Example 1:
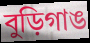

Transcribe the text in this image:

বুড়িগাঙ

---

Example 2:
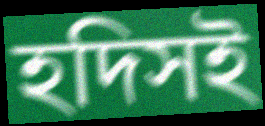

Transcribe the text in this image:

হদিসই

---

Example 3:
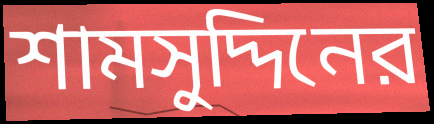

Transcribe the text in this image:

শামসুদ্দিনের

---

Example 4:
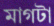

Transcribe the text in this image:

মাগটা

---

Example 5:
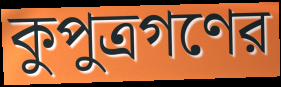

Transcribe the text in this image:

কুপুত্রগণের